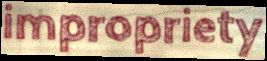
impropriety